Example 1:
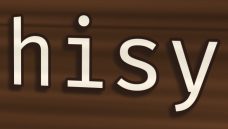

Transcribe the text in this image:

hisy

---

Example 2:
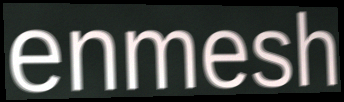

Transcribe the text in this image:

enmesh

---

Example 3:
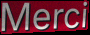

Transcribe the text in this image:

Merci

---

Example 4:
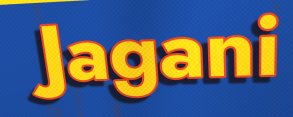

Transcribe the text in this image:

Jagani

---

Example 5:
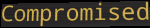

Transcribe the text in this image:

Compromised